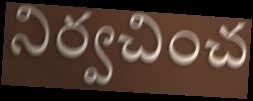
నిర్వచించ